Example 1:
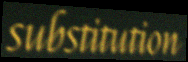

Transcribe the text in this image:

substitution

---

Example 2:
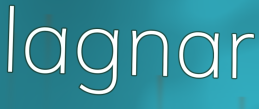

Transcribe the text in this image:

lagnar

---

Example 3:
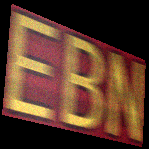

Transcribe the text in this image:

EBN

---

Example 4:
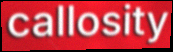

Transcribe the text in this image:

callosity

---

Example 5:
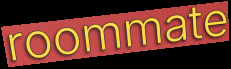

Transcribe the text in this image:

roommate